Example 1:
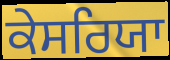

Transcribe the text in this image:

ਕੇਸਰਿਯਾ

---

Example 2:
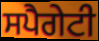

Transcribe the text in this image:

ਸਪੈਗੇਟੀ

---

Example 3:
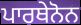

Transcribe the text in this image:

ਪਾਰਥੇਨੋਨ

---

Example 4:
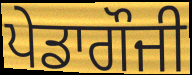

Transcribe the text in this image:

ਪੇਡਾਗੌਜੀ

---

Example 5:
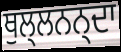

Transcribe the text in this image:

ਥੁਲ੍ਲਨਨ੍ਦਾ